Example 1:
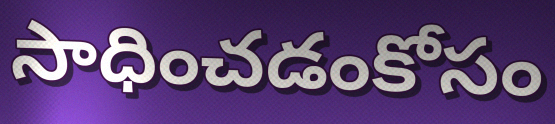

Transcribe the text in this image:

సాధించడంకోసం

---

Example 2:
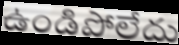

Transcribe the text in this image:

ఉండిపోలేదు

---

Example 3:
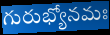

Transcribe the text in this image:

గురుభ్యోనమః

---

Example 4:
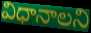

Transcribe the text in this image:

విధానాలని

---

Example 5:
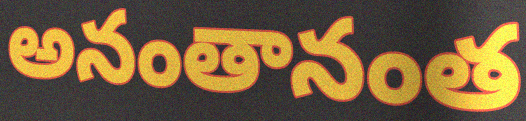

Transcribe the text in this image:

అనంతానంత